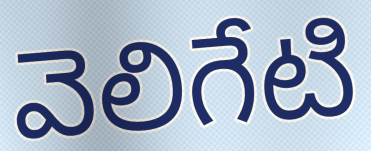
వెలిగేటి